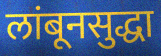
लांबूनसुद्धा